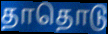
தாதொடு